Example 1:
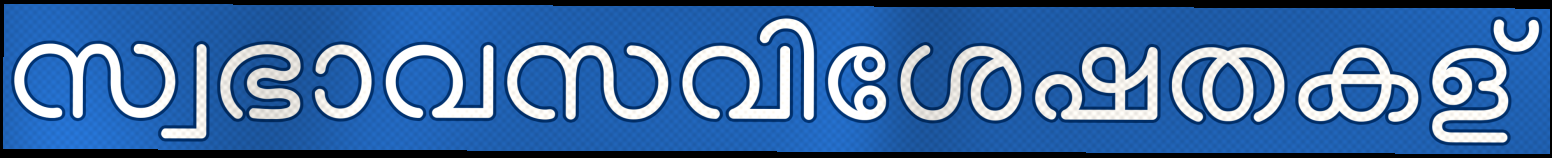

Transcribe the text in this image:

സ്വഭാവസവിശേഷതകള്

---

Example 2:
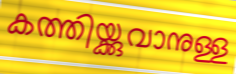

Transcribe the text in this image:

കത്തിയ്ക്കുവാനുള്ള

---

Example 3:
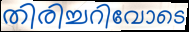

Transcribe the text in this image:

തിരിച്ചറിവോടെ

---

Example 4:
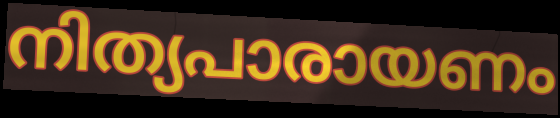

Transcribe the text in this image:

നിത്യപാരായണം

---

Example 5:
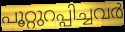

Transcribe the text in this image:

പൂറ്റുറപ്പിച്ചവർ